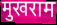
मुखराम